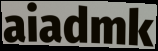
aiadmk